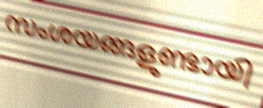
സംശയങ്ങളുണ്ടായി